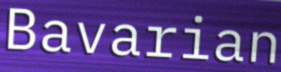
Bavarian